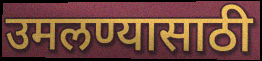
उमलण्यासाठी